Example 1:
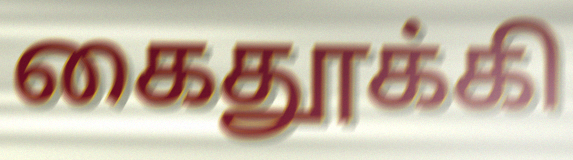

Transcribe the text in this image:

கைதூக்கி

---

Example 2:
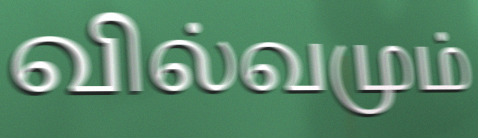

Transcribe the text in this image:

வில்வமும்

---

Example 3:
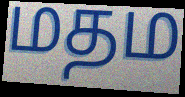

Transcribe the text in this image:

மதம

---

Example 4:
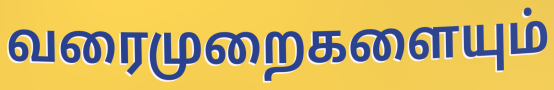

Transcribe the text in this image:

வரைமுறைகளையும்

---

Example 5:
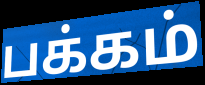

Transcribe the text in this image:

பக்கம்